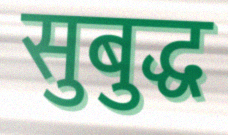
सुबुद्ध